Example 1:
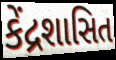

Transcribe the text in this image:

કેંદ્રશાસિત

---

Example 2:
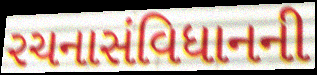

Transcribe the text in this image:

રચનાસંવિધાનની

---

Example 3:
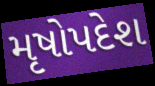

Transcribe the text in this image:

મૃષોપદેશ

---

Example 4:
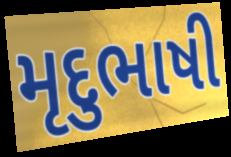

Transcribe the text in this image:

મૃદુભાષી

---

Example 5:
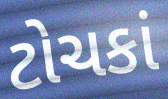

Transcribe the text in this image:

ટોચકાં